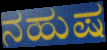
ನಹುಷ